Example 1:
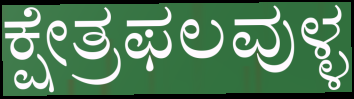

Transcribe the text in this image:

ಕ್ಷೇತ್ರಫಲವುಳ್ಳ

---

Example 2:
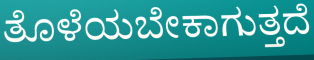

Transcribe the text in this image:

ತೊಳೆಯಬೇಕಾಗುತ್ತದೆ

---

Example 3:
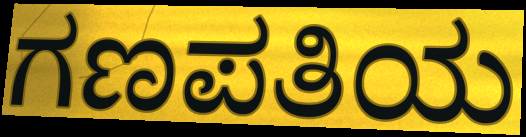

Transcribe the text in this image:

ಗಣಪತಿಯ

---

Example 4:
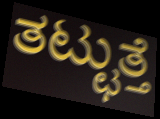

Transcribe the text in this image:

ತಟ್ಟುತ್ತೆ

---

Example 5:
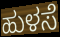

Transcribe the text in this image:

ಹುಳಸೆ